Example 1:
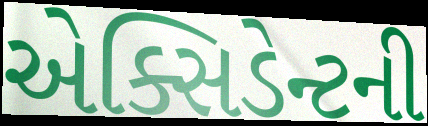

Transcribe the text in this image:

એક્સિડેન્ટની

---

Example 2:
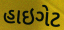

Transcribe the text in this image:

હાઇગેટ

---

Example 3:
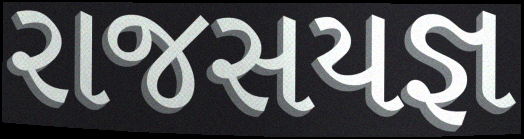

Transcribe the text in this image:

રાજસયજ્ઞ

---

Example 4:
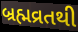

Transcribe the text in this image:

બ્રહ્મવ્રતથી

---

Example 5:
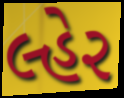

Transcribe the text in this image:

લ્હેર